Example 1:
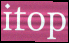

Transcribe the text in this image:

itop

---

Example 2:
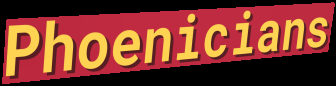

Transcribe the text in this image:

Phoenicians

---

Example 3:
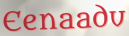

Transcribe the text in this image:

Eenaadu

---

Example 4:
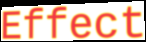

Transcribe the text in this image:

Effect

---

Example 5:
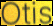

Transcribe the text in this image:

Otis